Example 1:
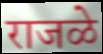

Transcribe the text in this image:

राजळे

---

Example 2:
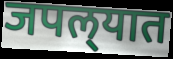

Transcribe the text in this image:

जपल्यात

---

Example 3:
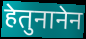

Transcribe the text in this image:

हेतुनानेन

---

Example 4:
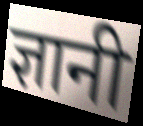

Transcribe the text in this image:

ज्ञानी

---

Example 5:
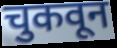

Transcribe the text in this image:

चुकवून